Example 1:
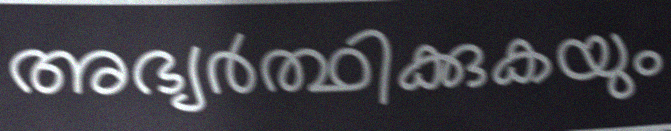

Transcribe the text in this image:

അഭ്യർത്ഥിക്കുകയും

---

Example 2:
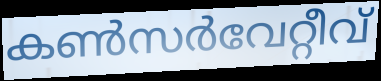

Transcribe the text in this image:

കൺസർവേറ്റീവ്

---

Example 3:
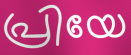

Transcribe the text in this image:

പ്രിയേ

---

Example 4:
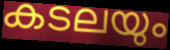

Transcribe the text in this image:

കടലയും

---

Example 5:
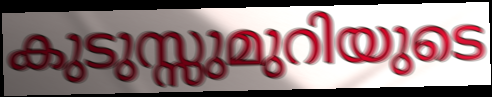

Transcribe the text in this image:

കുടുസ്സുമുറിയുടെ